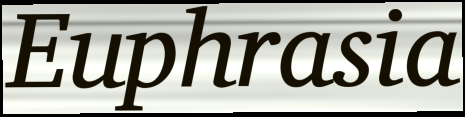
Euphrasia